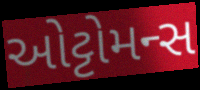
ઓટ્ટોમન્સ